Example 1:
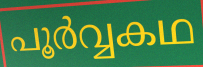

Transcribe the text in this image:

പൂർവ്വകഥ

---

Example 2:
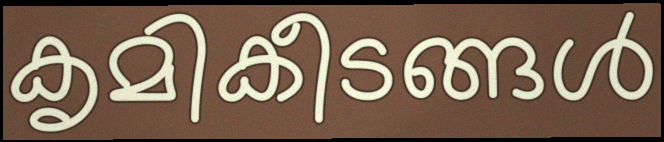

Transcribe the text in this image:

കൃമികീടങ്ങൾ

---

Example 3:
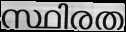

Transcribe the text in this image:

സ്ഥിരത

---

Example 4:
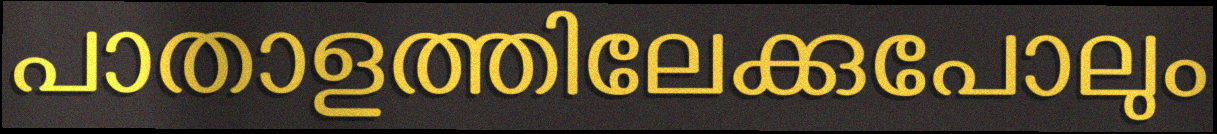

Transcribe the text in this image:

പാതാളത്തിലേക്കുപോലും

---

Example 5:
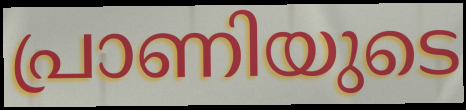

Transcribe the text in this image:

പ്രാണിയുടെ